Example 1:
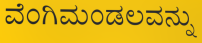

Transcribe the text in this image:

ವೆಂಗಿಮಂಡಲವನ್ನು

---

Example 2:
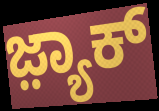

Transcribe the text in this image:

ಜ಼್ಯಾಕ್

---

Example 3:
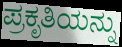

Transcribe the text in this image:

ಪ್ರಕೃತಿಯನ್ನು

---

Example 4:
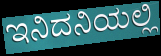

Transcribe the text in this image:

ಇನಿದನಿಯಲ್ಲಿ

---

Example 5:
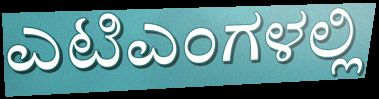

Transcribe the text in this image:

ಎಟಿಎಂಗಳಲ್ಲಿ